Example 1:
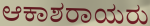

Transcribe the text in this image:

ಆಕಾಶರಾಯರು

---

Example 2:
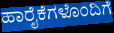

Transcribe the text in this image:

ಹಾರೈಕೆಗಳೊಂದಿಗೆ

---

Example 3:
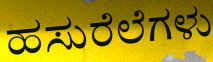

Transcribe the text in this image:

ಹಸುರೆಲೆಗಳು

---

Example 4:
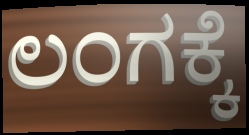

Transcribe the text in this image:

ಲಂಗಕ್ಕೆ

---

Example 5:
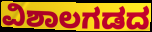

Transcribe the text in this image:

ವಿಶಾಲಗಡದ